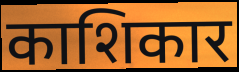
काशिकार